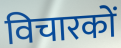
विचारकों